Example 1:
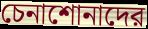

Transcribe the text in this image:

চেনাশোনাদের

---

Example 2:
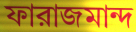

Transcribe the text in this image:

ফারাজমান্দ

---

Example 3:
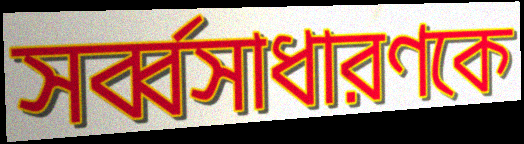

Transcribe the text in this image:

সর্ব্বসাধারণকে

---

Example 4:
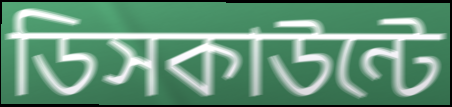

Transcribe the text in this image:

ডিসকাউন্টে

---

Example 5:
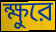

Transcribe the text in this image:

ক্ষুরে